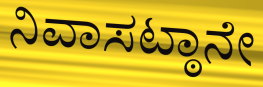
ನಿವಾಸಟ್ಠಾನೇ